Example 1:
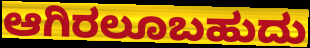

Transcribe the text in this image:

ಆಗಿರಲೂಬಹುದು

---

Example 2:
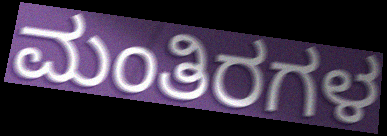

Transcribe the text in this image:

ಮಂತಿರಗಳ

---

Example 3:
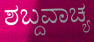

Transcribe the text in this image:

ಶಬ್ದವಾಚ್ಯ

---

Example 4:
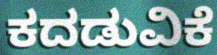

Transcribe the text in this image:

ಕದಡುವಿಕೆ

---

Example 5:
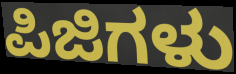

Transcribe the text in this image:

ಪಿಜಿಗಳು